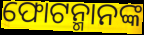
ଫୋଟନ୍ମାନଙ୍କ